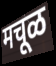
मचूळ